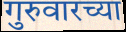
गुरुवारच्या